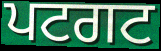
ਪਟਗਟ